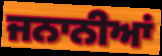
ਜਨਾਨੀਆਂ